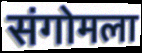
संगोमला